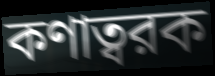
কণাত্বরক